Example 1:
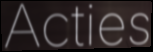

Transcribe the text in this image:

Acties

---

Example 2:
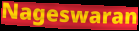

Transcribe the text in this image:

Nageswaran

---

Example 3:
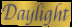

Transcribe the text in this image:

Daylight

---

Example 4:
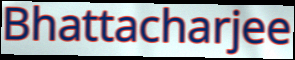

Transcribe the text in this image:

Bhattacharjee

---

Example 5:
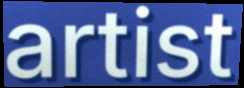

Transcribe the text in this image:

artist